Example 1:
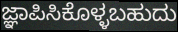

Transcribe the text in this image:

ಜ್ಞಾಪಿಸಿಕೊಳ್ಳಬಹುದು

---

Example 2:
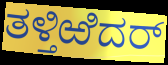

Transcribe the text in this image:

ತಳ್ತಿಱಿದರ್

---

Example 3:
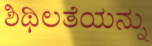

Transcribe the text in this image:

ಶಿಥಿಲತೆಯನ್ನು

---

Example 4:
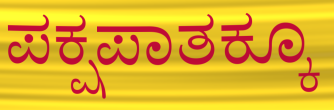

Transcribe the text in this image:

ಪಕ್ಷಪಾತಕ್ಕೂ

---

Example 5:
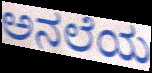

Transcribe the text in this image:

ಅನಲೆಯ